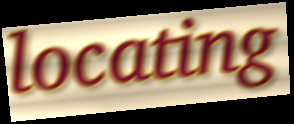
locating